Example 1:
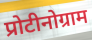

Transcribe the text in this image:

प्रोटीनोग्राम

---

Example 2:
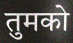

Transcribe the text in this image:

तुमको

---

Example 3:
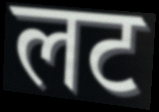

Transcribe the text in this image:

लट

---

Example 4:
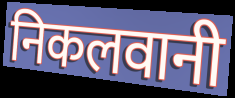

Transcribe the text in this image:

निकलवानी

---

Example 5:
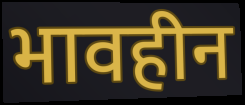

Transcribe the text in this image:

भावहीन